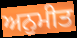
ਅਨੁਮੀਤ